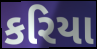
કરિયા